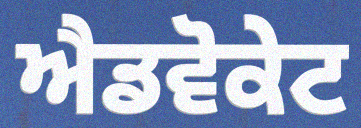
ਐਡਵੋਕੇਟ